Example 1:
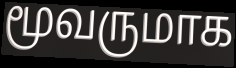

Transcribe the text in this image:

மூவருமாக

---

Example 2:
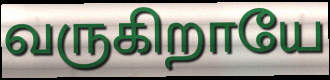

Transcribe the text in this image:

வருகிறாயே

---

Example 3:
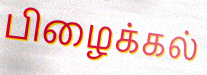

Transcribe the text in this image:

பிழைக்கல்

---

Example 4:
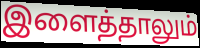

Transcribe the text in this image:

இளைத்தாலும்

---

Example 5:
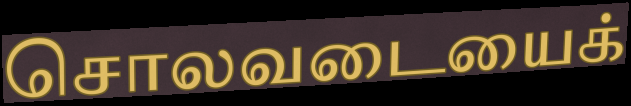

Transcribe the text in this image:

சொலவடையைக்